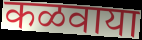
कळवाया